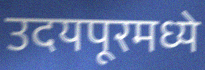
उदयपूरमध्ये